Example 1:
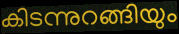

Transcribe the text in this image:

കിടന്നുറങ്ങിയും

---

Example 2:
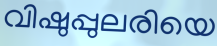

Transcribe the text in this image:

വിഷുപ്പുലരിയെ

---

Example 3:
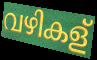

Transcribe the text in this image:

വഴികള്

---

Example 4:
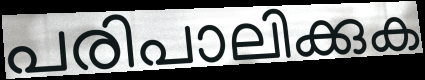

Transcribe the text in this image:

പരിപാലിക്കുക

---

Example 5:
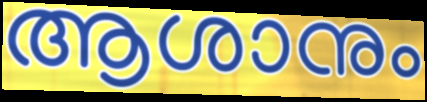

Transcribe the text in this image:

ആശാനും